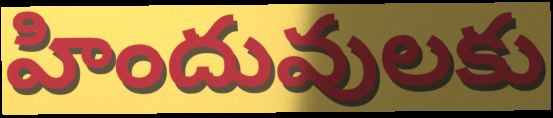
హిందువులకు